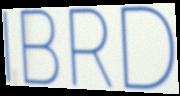
IBRD